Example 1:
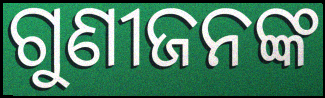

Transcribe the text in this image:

ଗୁଣୀଜନଙ୍କ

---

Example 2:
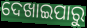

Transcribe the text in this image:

ଦେଖାଇପାରୁ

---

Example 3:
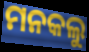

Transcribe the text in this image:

ମନକଲୁ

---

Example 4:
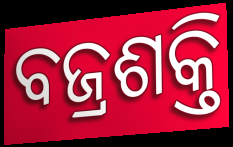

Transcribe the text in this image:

ବଜ୍ରଶକ୍ତି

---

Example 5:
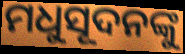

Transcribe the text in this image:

ମଧୁସୂଦନଙ୍କୁ